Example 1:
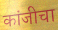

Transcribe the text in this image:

कांजीचा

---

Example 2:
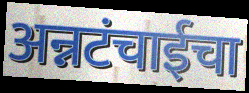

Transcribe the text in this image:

अन्नटंचाईचा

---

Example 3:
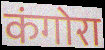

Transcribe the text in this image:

कंगोरा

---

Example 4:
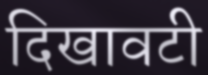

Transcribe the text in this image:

दिखावटी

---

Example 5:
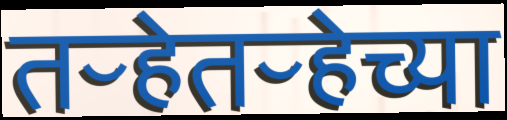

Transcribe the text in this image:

तऱ्हेतऱ्हेच्या